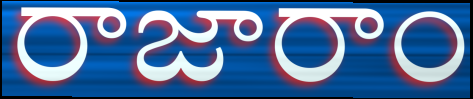
రాజారాం